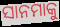
ସାନମାକୁ